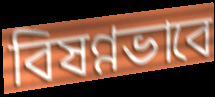
বিষণ্নভাবে